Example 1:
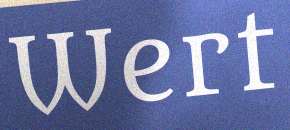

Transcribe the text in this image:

Wert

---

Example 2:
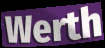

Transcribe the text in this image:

Werth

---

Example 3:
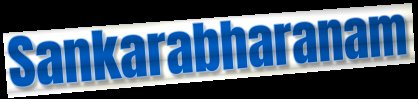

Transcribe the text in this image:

Sankarabharanam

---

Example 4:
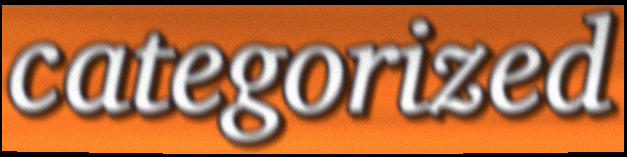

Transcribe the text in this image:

categorized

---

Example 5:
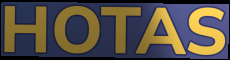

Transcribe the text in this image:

HOTAS